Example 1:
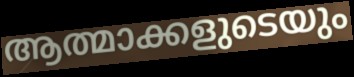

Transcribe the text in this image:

ആത്മാക്കളുടെയും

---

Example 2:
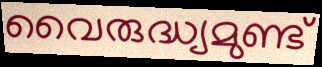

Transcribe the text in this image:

വൈരുദ്ധ്യമുണ്ട്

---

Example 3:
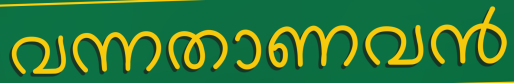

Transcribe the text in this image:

വന്നതാണവൻ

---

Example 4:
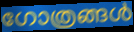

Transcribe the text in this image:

ഗോത്രങ്ങൾ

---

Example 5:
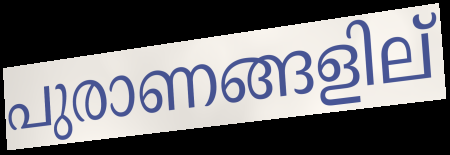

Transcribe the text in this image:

പുരാണങ്ങളില്